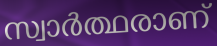
സ്വാർത്ഥരാണ്